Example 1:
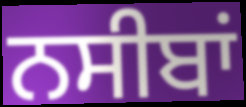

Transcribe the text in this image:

ਨਸੀਬਾਂ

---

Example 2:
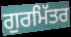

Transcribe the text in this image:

ਗੁਰਮਿੱਤਰ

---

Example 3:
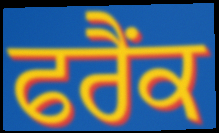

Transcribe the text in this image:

ਫਰੈਂਕ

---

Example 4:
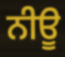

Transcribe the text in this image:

ਨੀਊ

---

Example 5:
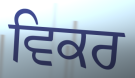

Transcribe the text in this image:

ਵਿਕਰ